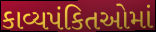
કાવ્યપંકિતઓમાં